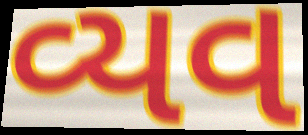
વ્યવ